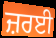
ਜ਼ਰਈ